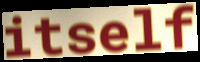
itself